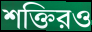
শক্তিরও